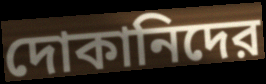
দোকানিদের